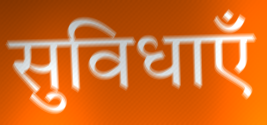
सुविधाएँ